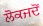
ਲੋਕਜਦੋਂ